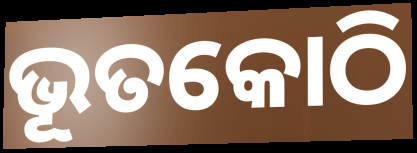
ଭୂତକୋଠି